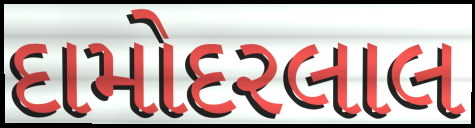
દામોદરલાલ